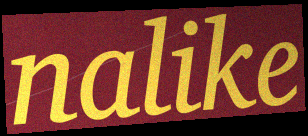
nalike